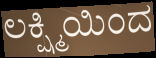
ಲಕ್ಷ್ಮಿಯಿಂದ